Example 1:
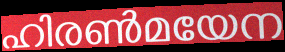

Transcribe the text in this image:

ഹിരൺമയേന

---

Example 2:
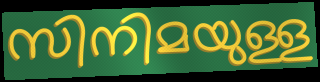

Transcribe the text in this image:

സിനിമയുള്ള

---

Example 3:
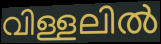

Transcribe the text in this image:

വിള്ളലിൽ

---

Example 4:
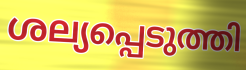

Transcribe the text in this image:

ശല്യപ്പെടുത്തി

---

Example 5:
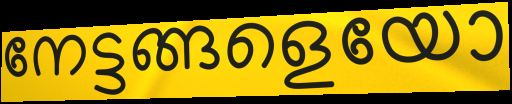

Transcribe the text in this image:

നേട്ടങ്ങളെയോ